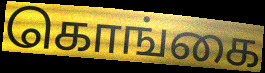
கொங்கை